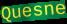
Quesne